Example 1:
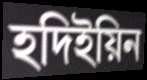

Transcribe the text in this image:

হদিইয়িন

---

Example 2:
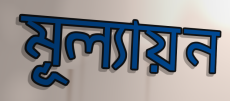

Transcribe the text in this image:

মূল্যায়ন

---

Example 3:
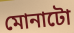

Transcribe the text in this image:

মোনাটো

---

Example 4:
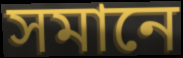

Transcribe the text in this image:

সমানে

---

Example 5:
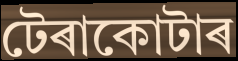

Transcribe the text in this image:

টেৰাকোটাৰ